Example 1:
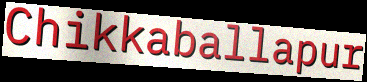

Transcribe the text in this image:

Chikkaballapur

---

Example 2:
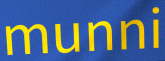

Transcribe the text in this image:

munni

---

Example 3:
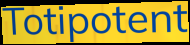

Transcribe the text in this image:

Totipotent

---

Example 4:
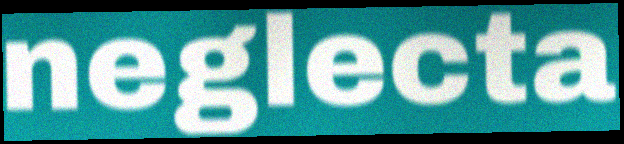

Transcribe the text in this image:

neglecta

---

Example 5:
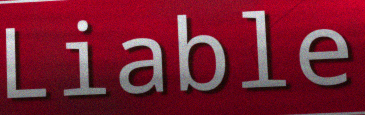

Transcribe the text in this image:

Liable